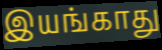
இயங்காது